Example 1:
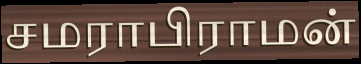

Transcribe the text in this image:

சமராபிராமன்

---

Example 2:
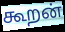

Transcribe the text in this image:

கூறன்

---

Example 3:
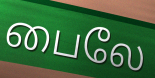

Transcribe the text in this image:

பைலே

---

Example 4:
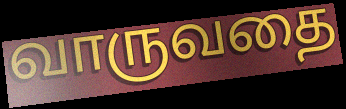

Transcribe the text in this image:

வாருவதை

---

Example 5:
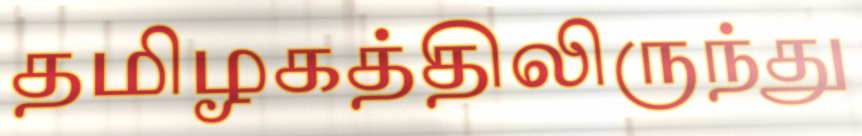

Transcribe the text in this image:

தமிழகத்திலிருந்து